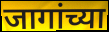
जागांच्या